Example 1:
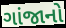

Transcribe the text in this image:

ગાંજાનો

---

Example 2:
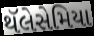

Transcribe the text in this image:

થૅલેસેમિયા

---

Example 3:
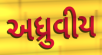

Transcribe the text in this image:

અધ્રુવીય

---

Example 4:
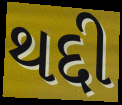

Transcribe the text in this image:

થદ્દી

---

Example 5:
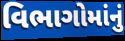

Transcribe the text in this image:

વિભાગોમાંનું